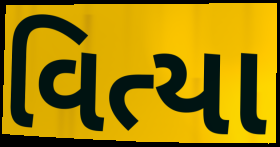
વિત્યા